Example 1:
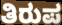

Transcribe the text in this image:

ತಿರುಪ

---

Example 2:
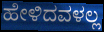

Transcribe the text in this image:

ಹೇಳಿದವಳಲ್ಲ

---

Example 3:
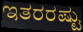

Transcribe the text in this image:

ಇತರರಷ್ಟು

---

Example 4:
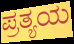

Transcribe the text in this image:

ಪ್ರತ್ಯಯ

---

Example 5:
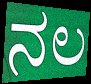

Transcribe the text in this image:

ನಲ